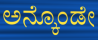
ಅನ್ಕೊಂಡೇ